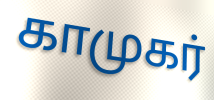
காமுகர்